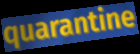
quarantine